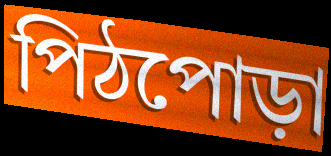
পিঠপোড়া